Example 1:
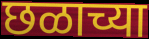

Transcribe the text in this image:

छळाच्या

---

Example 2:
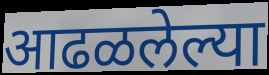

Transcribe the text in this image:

आढळलेल्या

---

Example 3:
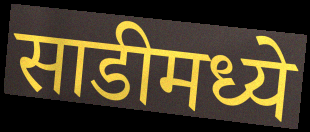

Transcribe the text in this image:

साडीमध्ये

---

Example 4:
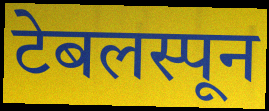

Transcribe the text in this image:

टेबलस्पून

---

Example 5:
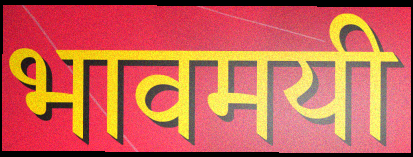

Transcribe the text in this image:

भावमयी